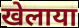
खेलाया